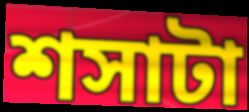
শসাটা